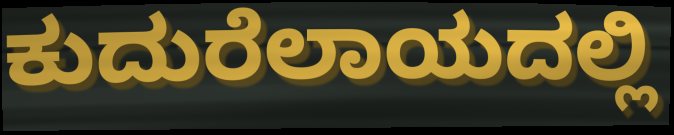
ಕುದುರೆಲಾಯದಲ್ಲಿ